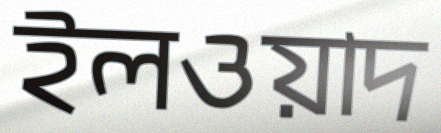
ইলওয়াদ